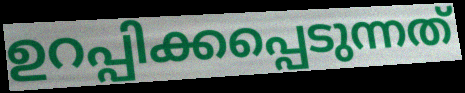
ഉറപ്പിക്കപ്പെടുന്നത്